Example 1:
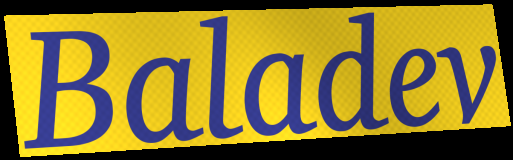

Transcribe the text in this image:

Baladev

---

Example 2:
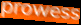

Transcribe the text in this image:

prowess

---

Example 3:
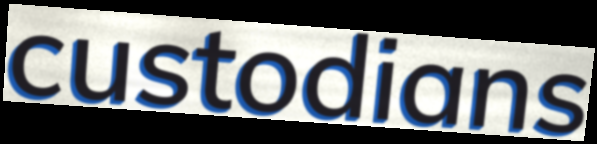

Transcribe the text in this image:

custodians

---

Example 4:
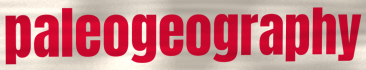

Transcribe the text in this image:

paleogeography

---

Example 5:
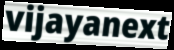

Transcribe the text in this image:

vijayanext